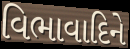
વિભાવાદિને